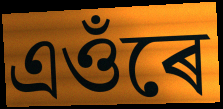
এওঁৰে